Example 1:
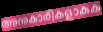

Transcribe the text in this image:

അനുകാരികളാകുക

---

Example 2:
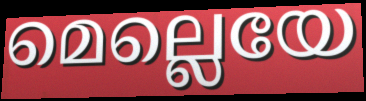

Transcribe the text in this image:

മെല്ലെയേ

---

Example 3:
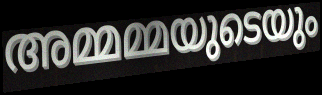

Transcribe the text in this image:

അമ്മമ്മയുടെയും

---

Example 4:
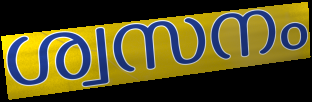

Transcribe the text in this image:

ശ്വസനം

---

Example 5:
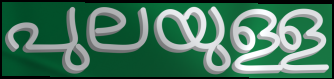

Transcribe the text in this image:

പുലയുള്ള